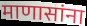
माणासांना